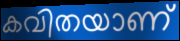
കവിതയാണ്